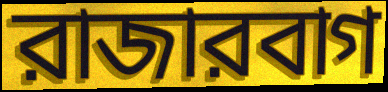
রাজারবাগ